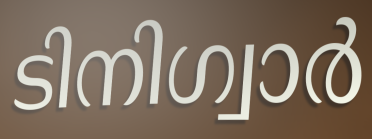
ടിനിഗ്വാർ